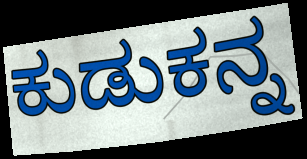
ಕುಡುಕನ್ನ